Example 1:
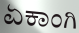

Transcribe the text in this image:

ಏಕಾಂಗಿ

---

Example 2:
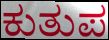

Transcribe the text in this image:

ಕುತುಪ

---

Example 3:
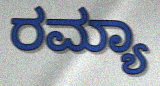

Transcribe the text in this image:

ರಮ್ಯಾ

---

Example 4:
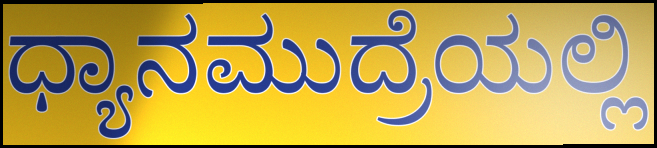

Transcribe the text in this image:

ಧ್ಯಾನಮುದ್ರೆಯಲ್ಲಿ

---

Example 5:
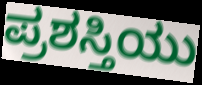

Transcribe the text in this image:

ಪ್ರಶಸ್ತಿಯು